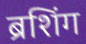
ब्रशिंग